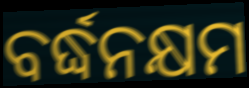
ବର୍ଦ୍ଧନକ୍ଷମ